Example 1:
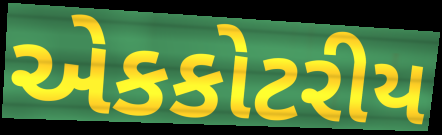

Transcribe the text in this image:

એકકોટરીય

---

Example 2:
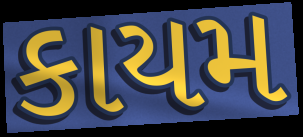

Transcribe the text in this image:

કાયમ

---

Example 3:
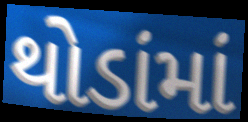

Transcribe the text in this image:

થોડાંમાં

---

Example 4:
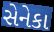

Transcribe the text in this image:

સેનેકા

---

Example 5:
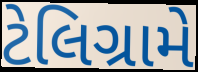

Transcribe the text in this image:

ટેલિગ્રામે